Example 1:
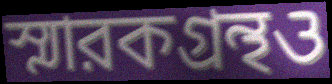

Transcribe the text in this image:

স্মারকগ্রন্থও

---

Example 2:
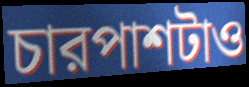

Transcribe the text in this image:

চারপাশটাও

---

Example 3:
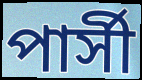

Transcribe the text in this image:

পার্সী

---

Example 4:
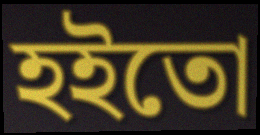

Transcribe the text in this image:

হইতো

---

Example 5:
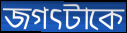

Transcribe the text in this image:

জগৎটাকে